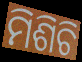
ମିଶିଚି